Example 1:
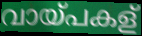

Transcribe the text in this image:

വായ്പകള്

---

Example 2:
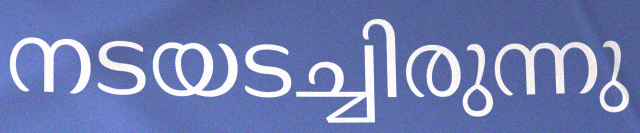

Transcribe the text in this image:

നടയടച്ചിരുന്നു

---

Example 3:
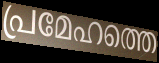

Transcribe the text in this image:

പ്രമേഹത്തെ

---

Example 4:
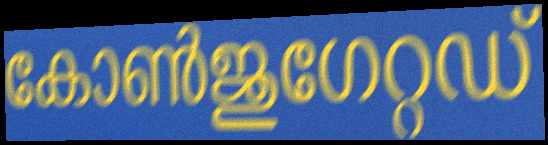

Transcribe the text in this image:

കോൺജുഗേറ്റഡ്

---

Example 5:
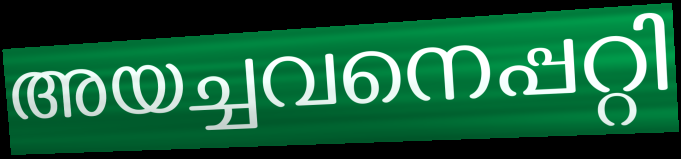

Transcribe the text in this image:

അയച്ചവനെപ്പറ്റി